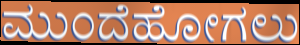
ಮುಂದೆಹೋಗಲು